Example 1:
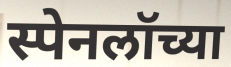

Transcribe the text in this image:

स्पेनलॉच्या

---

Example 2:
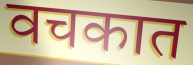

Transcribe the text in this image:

वचकात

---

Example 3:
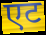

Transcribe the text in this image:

एट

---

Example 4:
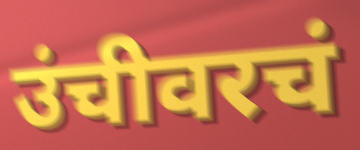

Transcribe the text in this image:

उंचीवरचं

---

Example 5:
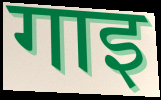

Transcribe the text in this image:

गाइ